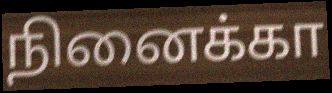
நினைக்கா